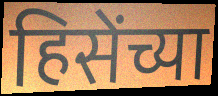
हिसेंच्या